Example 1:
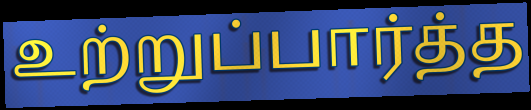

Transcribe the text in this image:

உற்றுப்பார்த்த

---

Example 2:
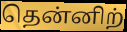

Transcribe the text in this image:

தென்னிற்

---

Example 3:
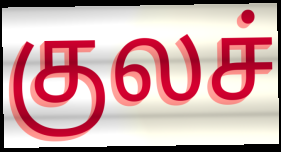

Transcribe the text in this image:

குலச்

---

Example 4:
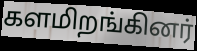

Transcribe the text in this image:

களமிறங்கினர்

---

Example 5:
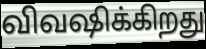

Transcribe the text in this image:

விவஷிக்கிறது